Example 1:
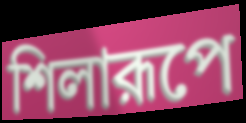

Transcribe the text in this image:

শিলারূপে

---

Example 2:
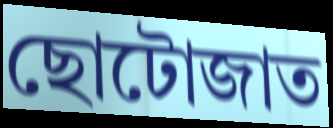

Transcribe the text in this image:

ছোটোজাত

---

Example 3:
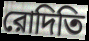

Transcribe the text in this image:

রোদিতি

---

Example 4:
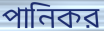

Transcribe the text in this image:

পানিকর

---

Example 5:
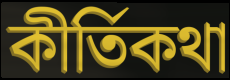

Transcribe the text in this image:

কীর্তিকথা